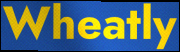
Wheatly